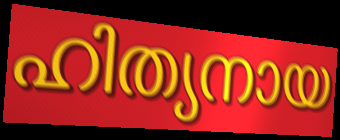
ഹിത്യനായ